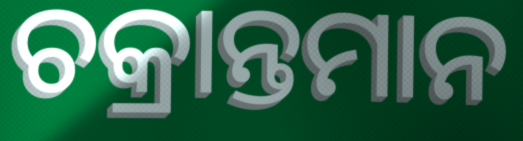
ଚକ୍ରାନ୍ତମାନ